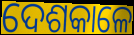
ଦେଶକାଳେ